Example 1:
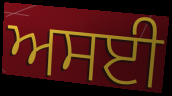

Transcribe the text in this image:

ਅਸਈ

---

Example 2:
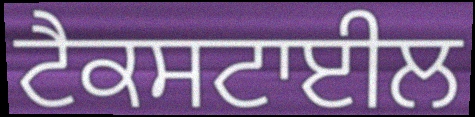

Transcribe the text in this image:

ਟੈਕਸਟਾਈਲ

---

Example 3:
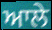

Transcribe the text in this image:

ਆਲੇ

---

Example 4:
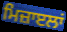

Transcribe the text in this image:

ਮਿਜ਼ਾੲਲਾਂ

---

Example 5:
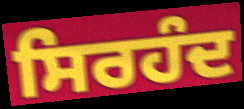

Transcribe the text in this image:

ਸਿਰਹੰਦ